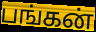
பங்கன்